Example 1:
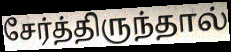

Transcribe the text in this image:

சேர்த்திருந்தால்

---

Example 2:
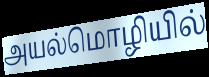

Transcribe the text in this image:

அயல்மொழியில்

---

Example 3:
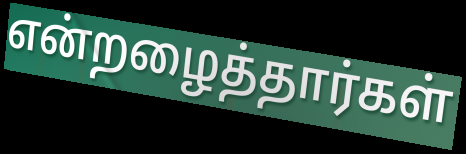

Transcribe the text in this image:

என்றழைத்தார்கள்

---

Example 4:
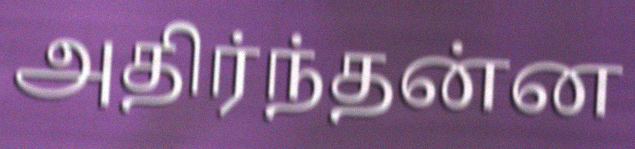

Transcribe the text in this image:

அதிர்ந்தன்ன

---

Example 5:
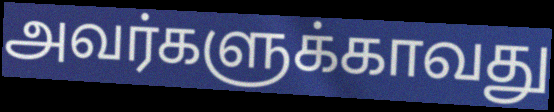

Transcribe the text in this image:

அவர்களுக்காவது